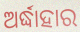
ଅର୍ଦ୍ଧାହାର